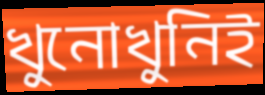
খুনোখুনিই